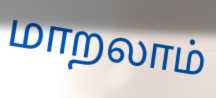
மாறலாம்